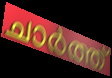
ചാർത്ത്